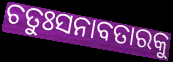
ଚତୁଃସନାବତାରକୁ